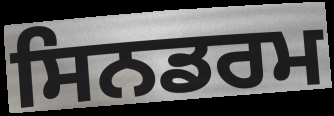
ਸਿਨਡਰਮ